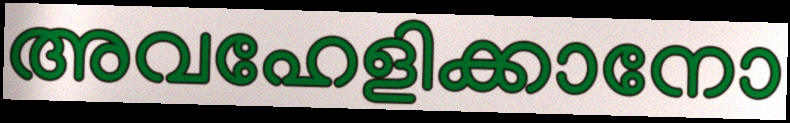
അവഹേളിക്കാനോ